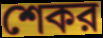
শেকর